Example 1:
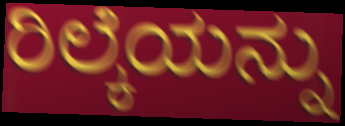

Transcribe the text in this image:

ರಿಲ್ಕೆಯನ್ನು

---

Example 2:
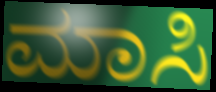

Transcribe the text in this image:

ಮಾಸಿ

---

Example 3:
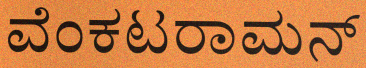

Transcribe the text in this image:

ವೆಂಕಟರಾಮನ್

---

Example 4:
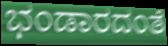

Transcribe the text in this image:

ಭಂಡಾರದಂತೆ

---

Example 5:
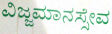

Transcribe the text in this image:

ವಿಜ್ಜಮಾನಸ್ಸೇವ